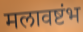
मलावष्टंभ